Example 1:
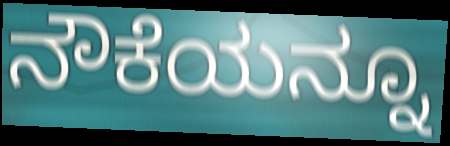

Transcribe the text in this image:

ನೌಕೆಯನ್ನೂ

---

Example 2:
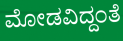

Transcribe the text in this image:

ಮೋಡವಿದ್ದಂತೆ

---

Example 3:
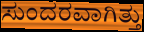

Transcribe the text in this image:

ಸುಂದರವಾಗಿತ್ತು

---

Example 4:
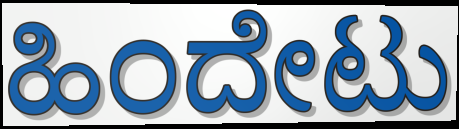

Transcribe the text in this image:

ಹಿಂದೇಟು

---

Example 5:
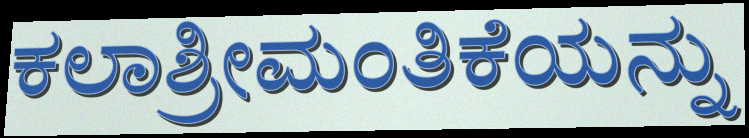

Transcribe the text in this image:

ಕಲಾಶ್ರೀಮಂತಿಕೆಯನ್ನು